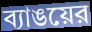
ব্যাঙয়ের